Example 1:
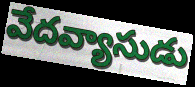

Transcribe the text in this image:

వేదవ్యాసుడు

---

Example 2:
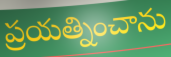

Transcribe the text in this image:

ప్రయత్నించాను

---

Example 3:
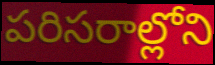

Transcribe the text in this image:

పరిసరాల్లోని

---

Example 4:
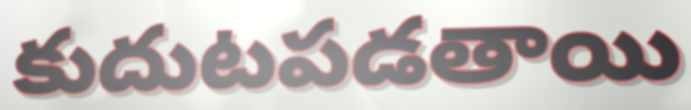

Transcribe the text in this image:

కుదుటపడతాయి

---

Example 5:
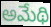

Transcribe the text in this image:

అమేథి